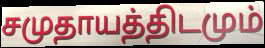
சமுதாயத்திடமும்